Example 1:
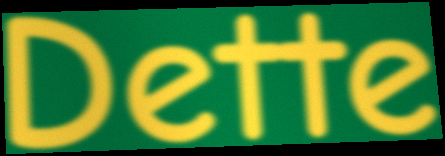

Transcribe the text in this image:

Dette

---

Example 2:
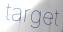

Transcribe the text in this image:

target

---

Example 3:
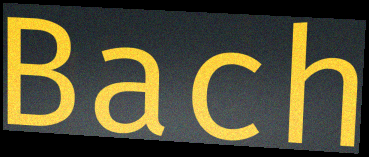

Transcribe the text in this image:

Bach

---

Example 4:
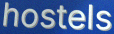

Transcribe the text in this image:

hostels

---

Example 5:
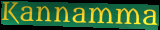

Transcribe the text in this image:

Kannamma